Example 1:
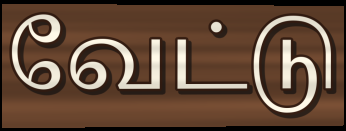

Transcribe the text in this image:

வேட்டு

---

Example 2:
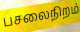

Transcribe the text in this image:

பசலைநிறம்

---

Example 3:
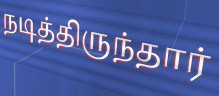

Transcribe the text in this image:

நடித்திருந்தார்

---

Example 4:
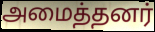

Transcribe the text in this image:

அமைத்தனர்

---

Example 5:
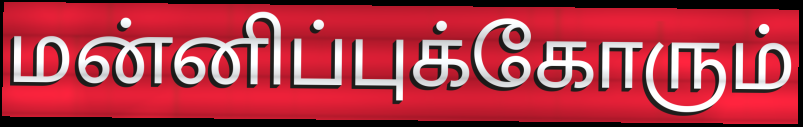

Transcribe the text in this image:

மன்னிப்புக்கோரும்